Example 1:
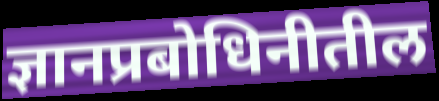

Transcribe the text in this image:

ज्ञानप्रबोधिनीतील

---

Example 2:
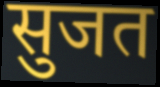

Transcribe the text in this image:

सुजत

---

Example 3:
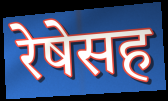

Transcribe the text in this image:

रेषेसह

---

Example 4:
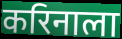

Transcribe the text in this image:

करिनाला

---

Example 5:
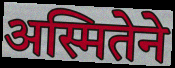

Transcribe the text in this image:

अस्मितेने